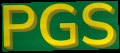
PGS